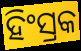
ହିଂସ୍ରକ